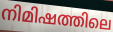
നിമിഷത്തിലെ